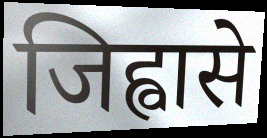
जिह्वासे